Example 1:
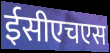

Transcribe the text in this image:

ईसीएचएस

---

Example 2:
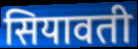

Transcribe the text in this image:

सियावती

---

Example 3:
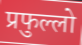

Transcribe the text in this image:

प्रफुल्लो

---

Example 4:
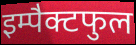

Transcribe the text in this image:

इम्पैक्टफुल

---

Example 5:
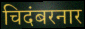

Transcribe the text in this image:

चिदंबरनार